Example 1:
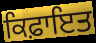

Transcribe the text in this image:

ਕਿਫ਼ਾਇਤ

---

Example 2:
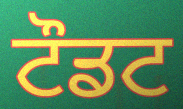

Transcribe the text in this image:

ਟੌਡਟ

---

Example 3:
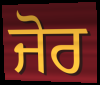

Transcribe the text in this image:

ਜੋਰ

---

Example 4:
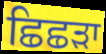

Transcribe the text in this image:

ਛਿਛੜਾ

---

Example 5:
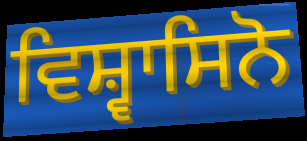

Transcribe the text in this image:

ਵਿਸ਼੍ਵਾਸਿਨੋ